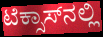
ಟೆಕ್ಸಾಸ್‌ನಲ್ಲಿ